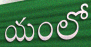
యంలో